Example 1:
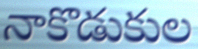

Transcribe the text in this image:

నాకొడుకుల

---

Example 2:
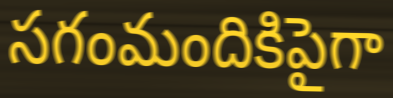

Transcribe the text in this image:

సగంమందికిపైగా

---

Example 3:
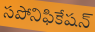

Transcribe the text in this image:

సపోనిఫికేషన్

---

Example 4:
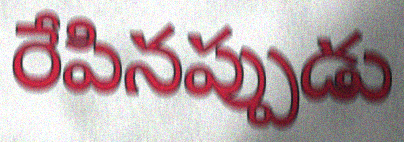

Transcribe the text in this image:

రేపినప్పుడు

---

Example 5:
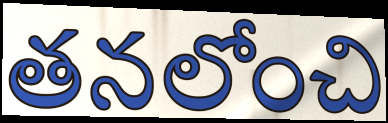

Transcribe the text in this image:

తనలోంచి